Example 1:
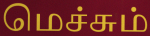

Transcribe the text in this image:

மெச்சும்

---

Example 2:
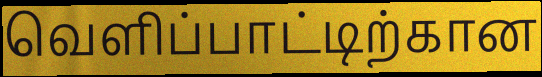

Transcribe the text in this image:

வெளிப்பாட்டிற்கான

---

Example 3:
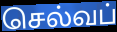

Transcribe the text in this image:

செல்வப்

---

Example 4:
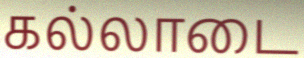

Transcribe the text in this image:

கல்லாடை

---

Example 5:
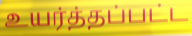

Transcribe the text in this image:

உயர்த்தப்பட்ட